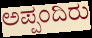
ಅಪ್ಪಂದಿರು